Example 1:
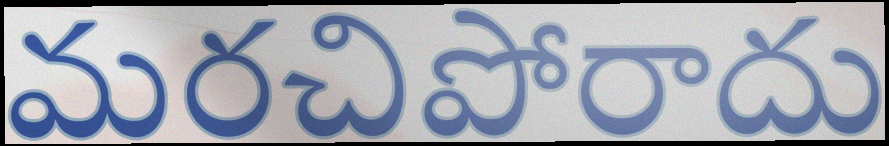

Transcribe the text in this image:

మరచిపోరాదు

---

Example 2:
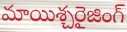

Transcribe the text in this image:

మాయిశ్చరైజింగ్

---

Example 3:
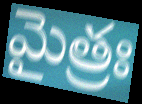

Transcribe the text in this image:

మైత్రః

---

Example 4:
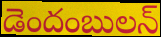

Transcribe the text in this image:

డెందంబులన్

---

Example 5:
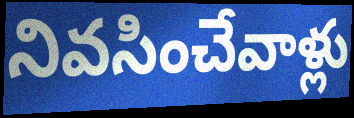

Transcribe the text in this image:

నివసించేవాళ్లు